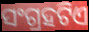
ସଂଗ୍ରହଟିଏ